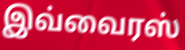
இவ்வைரஸ்